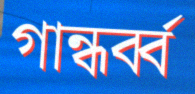
গান্ধর্ব্ব